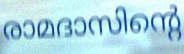
രാമദാസിന്റെ